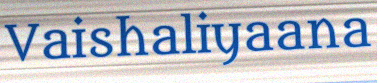
Vaishaliyaana